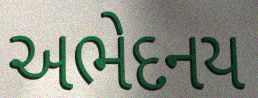
અભેદનય